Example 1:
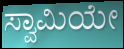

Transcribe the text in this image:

ಸ್ವಾಮಿಯೇ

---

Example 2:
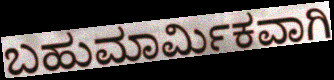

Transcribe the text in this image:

ಬಹುಮಾರ್ಮಿಕವಾಗಿ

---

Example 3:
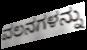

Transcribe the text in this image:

ವಲನಗಳನ್ನು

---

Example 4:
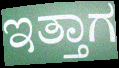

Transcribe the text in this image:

ಇತ್ತಾಗ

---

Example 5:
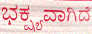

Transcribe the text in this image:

ಭಕ್ಷ್ಯವಾಗಿದೆ